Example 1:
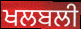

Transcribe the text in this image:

ਖਲਬਲੀ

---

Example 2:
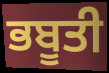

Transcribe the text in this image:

ਭਬੂਤੀ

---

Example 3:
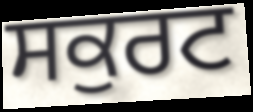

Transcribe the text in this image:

ਸਕੁਰਟ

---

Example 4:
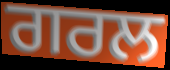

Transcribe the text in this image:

ਗਰਲ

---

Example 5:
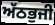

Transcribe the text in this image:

ਅੱਠਭੁਜੀ